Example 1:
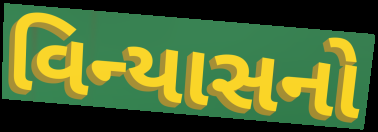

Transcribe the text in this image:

વિન્યાસનો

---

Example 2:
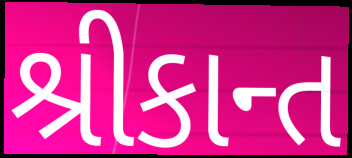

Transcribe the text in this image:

શ્રીકાન્ત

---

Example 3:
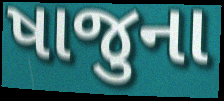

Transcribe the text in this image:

ષાજુના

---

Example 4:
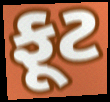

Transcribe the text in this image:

ફૂટ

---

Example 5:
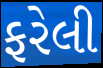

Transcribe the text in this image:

ફરેલી